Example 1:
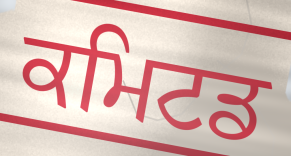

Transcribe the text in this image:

ਕਮਿਟਡ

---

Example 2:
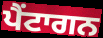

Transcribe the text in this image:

ਪੈਂਟਾਗਨ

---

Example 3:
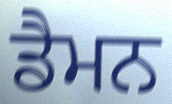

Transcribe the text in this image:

ਡੈਮਨ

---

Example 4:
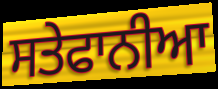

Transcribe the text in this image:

ਸਤੇਫਾਨੀਆ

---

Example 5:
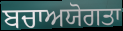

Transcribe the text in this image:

ਬਚਾਅਯੋਗਤਾ